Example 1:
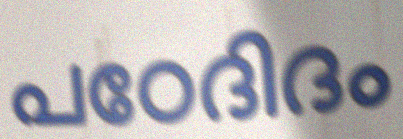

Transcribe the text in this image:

പഠേദിദം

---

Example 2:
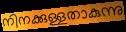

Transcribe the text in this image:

നിനക്കുള്ളതാകുന്നു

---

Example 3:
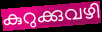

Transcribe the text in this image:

കുറുക്കുവഴി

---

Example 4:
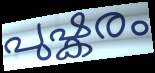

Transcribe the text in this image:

പുഷ്കരം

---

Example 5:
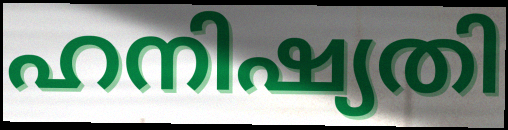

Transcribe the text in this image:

ഹനിഷ്യതി